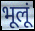
भूलूं